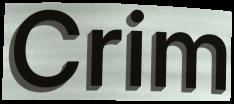
Crim